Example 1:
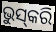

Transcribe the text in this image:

ଭୁସ୍‌କରି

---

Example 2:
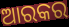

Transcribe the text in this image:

ଆରକର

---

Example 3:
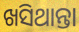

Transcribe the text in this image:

ଖସିଥାନ୍ତା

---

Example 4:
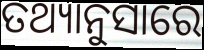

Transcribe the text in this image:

ତଥ୍ୟାନୁସାରେ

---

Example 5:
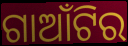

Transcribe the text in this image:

ଗାଆଁଟିର